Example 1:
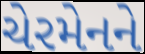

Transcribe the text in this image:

ચેરમેનને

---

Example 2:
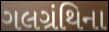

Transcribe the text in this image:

ગલગ્રંથિના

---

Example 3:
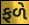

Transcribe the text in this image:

ફળે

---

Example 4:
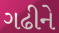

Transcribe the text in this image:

ગઢીને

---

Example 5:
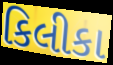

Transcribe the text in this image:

કિલીકા